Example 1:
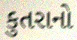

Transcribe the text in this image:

કુતરાનો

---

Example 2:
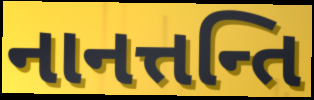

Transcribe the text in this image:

નાનત્તન્તિ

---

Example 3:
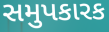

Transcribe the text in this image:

સમુપકારક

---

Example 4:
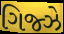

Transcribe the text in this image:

ગિજ્ઝે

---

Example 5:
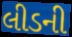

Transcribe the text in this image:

લીડની